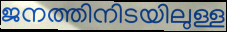
ജനത്തിനിടയിലുള്ള